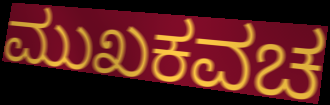
ಮುಖಕವಚ